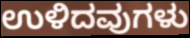
ಉಳಿದವುಗಳು